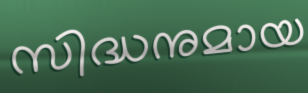
സിദ്ധനുമായ